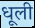
धूली